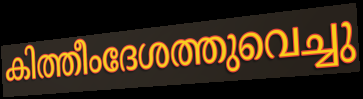
കിത്തീംദേശത്തുവെച്ചു